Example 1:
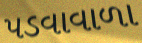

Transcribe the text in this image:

પડવાવાળા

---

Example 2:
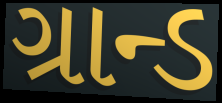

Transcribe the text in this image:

ગ્રાન્ડ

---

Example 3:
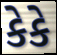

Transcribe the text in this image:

કેકે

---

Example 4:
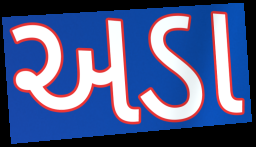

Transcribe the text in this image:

અડા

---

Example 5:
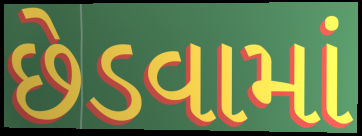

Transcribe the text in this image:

છેડવામાં